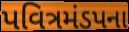
પવિત્રમંડપના